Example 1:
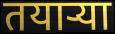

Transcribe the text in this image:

तयाऱ्या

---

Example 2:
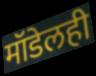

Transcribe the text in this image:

मॉडेलही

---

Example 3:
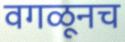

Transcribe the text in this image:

वगळूनच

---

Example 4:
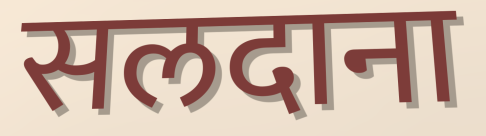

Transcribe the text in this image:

सलदाना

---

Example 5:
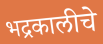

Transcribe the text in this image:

भद्रकालीचे